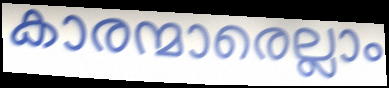
കാരന്മാരെല്ലാം